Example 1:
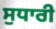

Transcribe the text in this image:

ਸੁਧਾਰੀ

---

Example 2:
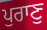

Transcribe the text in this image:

ਪੁਰਾਣੁ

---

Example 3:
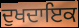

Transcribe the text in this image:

ਦੁਖਦਾਇਕ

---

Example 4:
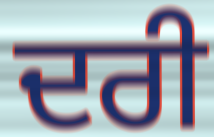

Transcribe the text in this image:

ਦਰੀ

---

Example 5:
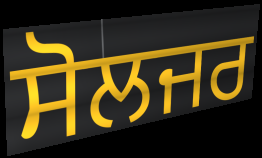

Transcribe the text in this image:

ਸੋਲਜਰ